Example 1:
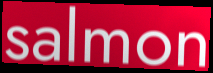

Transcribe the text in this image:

salmon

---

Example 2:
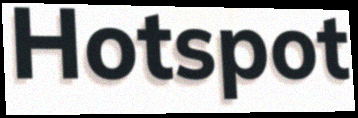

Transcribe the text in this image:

Hotspot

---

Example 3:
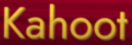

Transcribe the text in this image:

Kahoot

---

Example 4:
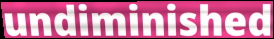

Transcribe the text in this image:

undiminished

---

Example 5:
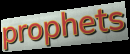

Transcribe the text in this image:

prophets